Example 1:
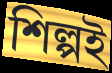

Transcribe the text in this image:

শিল্পই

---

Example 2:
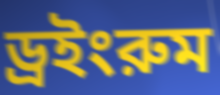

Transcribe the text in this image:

ড্রইংরুম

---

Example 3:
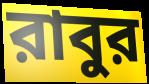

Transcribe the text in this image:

রাবুর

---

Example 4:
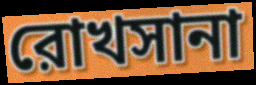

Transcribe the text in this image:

রোখসানা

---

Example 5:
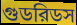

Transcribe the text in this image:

গুডরিডস